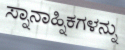
ಸ್ನಾನಾಹ್ನಿಕಗಳನ್ನು